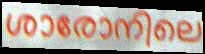
ശാരോനിലെ